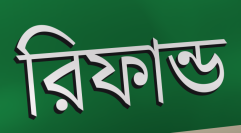
রিফান্ড